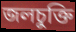
জলচুক্তি